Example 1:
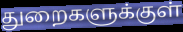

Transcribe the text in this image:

துறைகளுக்குள்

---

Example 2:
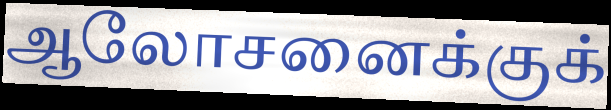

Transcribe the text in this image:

ஆலோசனைக்குக்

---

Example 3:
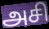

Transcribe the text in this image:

அசி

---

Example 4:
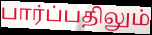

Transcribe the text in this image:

பார்ப்பதிலும்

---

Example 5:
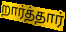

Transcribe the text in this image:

றார்த்தார்